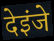
देइंजे